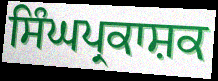
ਸਿੰਘਪ੍ਰਕਾਸ਼ਕ